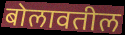
बोलावतील